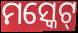
ମସ୍କେଟ୍